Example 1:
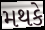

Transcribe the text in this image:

મથકે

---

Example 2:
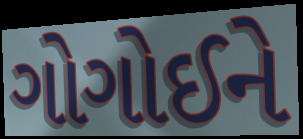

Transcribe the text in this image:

ગોગોઈને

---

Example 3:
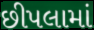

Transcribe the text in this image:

છીપલામાં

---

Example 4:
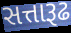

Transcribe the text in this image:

સત્તારૂઢ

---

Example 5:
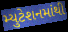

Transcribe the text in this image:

મ્યુટેશનમાંથી